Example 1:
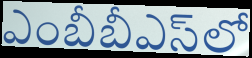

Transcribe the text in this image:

ఎంబీబీఎస్‌లో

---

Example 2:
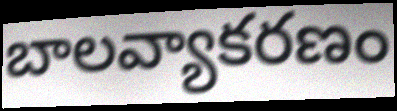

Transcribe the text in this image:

బాలవ్యాకరణం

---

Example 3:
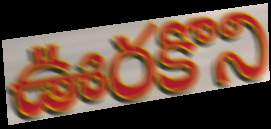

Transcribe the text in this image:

ఊరకొని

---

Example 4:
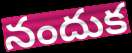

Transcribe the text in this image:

నందుక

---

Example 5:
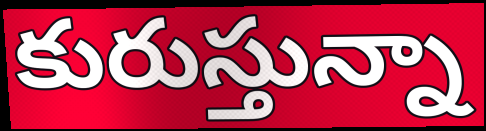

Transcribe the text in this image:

కురుస్తున్నా